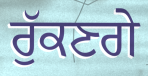
ਰੁੱਕਣਗੇ